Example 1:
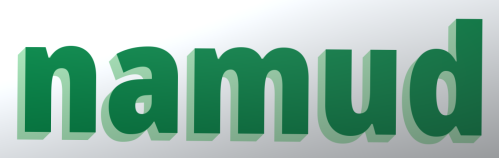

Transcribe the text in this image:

namud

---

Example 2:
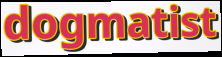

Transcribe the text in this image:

dogmatist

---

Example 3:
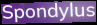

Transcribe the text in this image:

Spondylus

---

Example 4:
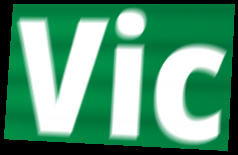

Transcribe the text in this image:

Vic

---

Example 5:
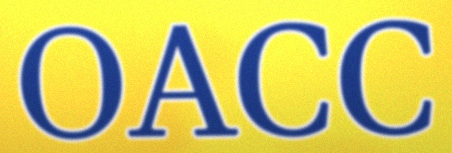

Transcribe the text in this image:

OACC